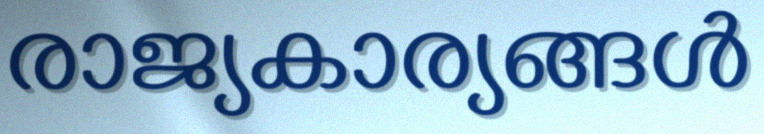
രാജ്യകാര്യങ്ങൾ